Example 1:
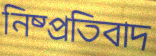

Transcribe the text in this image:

নিষ্প্রতিবাদ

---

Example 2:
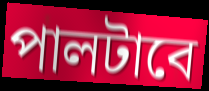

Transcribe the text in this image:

পালটাবে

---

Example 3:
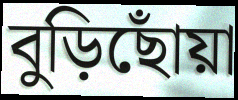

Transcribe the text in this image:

বুড়িছোঁয়া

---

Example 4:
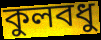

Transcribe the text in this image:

কুলবধু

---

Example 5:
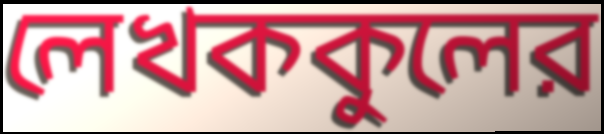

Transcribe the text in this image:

লেখককুলের